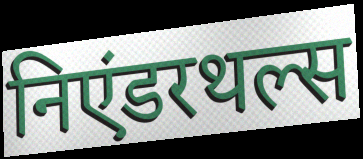
निएंडरथल्स